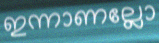
ഇന്നാണല്ലോ